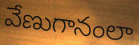
వేణుగానంలా